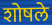
शोषले